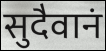
सुदैवानं